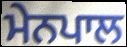
ਮੇਨਪਾਲ